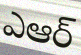
ఎఆర్